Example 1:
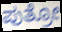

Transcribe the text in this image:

ಪುತ್ರೋ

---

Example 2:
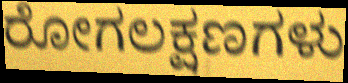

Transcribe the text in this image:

ರೋಗಲಕ್ಷಣಗಳು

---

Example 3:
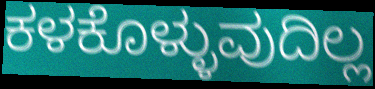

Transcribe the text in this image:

ಕಳಕೊಳ್ಳುವುದಿಲ್ಲ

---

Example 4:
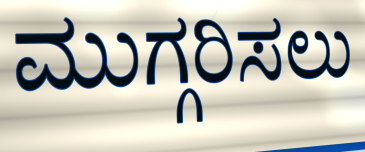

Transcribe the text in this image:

ಮುಗ್ಗರಿಸಲು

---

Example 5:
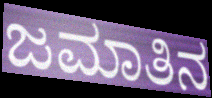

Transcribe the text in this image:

ಜಮಾತಿನ